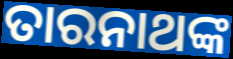
ତାରନାଥଙ୍କ